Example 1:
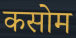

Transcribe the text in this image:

कसोम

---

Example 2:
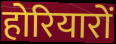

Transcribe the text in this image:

होरियारों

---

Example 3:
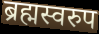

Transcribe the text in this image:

ब्रह्मस्वरुप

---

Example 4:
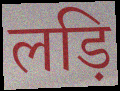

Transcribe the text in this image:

लड़ि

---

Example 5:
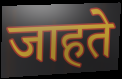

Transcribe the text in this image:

जाहते